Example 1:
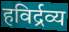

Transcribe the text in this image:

हविर्द्रव्य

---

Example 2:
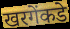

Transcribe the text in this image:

खरगेंकडे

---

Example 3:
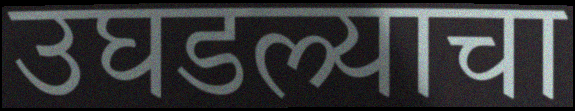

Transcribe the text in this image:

उघडल्याचा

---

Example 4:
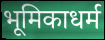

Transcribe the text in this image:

भूमिकाधर्म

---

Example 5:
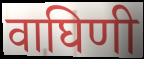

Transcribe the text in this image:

वाघिणी